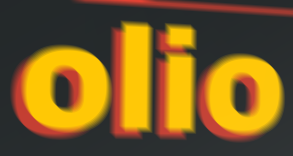
olio